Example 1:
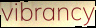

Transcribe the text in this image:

vibrancy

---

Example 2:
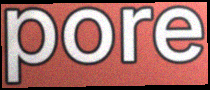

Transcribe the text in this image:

pore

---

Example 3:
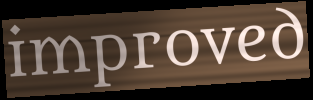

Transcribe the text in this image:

improved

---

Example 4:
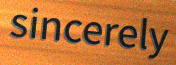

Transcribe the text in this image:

sincerely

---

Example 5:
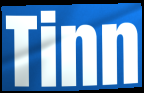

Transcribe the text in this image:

Tinn